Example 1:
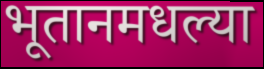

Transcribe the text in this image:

भूतानमधल्या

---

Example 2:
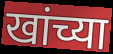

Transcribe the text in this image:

खांच्या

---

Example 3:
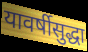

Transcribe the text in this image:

यावर्षीसुद्धा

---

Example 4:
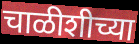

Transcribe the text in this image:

चाळीशीच्या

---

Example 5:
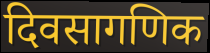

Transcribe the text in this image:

दिवसागणिक